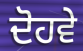
ਦੋਹਵੇ